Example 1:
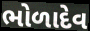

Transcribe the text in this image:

ભોળાદેવ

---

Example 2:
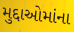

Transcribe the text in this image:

મુદ્દાઓમાંના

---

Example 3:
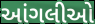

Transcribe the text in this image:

આંગલીઓ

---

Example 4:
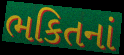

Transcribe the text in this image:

ભકિતનાં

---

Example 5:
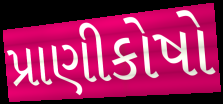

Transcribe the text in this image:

પ્રાણીકોષો